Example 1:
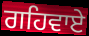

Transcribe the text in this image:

ਗਹਿਵਾਏ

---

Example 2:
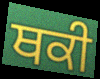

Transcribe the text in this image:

ਥਕੀ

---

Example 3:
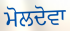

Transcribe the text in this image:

ਮੋਲਦੋਵਾ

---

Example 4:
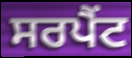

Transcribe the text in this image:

ਸਰਪੈਂਟ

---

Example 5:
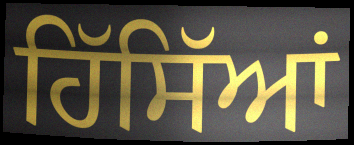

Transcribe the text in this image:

ਹਿੱਸਿੱਆਂ